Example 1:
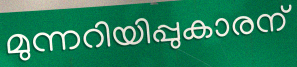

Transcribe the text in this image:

മുന്നറിയിപ്പുകാരന്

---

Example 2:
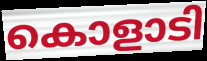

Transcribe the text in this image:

കൊളാടി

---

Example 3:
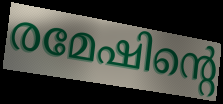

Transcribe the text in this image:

രമേഷിന്റെ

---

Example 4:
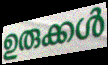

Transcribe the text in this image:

ഉരുക്കൾ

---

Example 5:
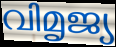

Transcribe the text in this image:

വിമൃജ്യ